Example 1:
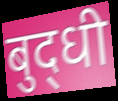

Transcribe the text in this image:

बुद्धी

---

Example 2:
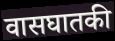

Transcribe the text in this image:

वासघातकी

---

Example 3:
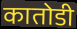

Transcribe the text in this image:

कातोडी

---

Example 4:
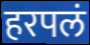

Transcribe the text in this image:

हरपलं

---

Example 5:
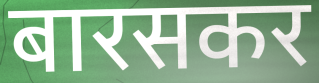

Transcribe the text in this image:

बारसकर